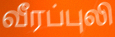
வீரப்புலி